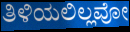
ತಿಳಿಯಲಿಲ್ಲವೋ